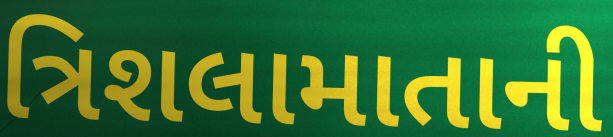
ત્રિશલામાતાની